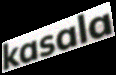
kasala